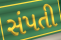
સંપતી